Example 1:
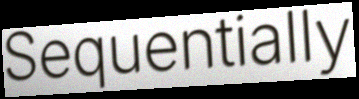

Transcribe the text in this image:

Sequentially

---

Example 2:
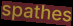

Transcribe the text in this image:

spathes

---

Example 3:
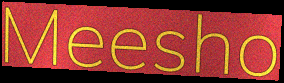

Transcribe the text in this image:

Meesho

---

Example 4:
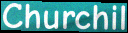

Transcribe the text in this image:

Churchil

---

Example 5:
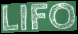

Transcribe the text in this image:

LIFO